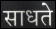
साधते